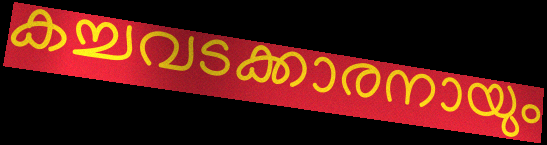
കച്ചവടക്കാരനായും